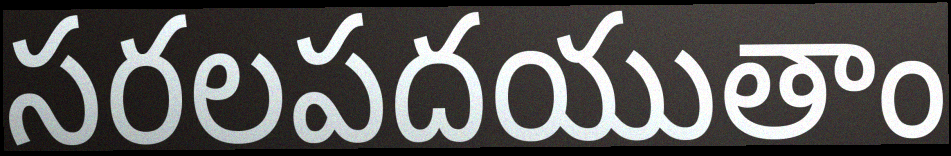
సరలపదయుతాం